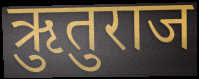
ऋुतुराज